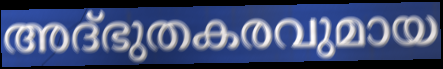
അദ്ഭുതകരവുമായ